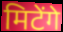
मिटेंगे